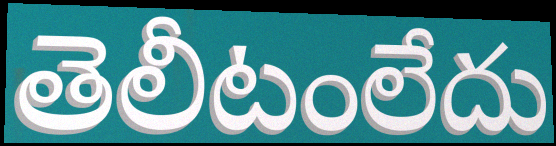
తెలీటంలేదు